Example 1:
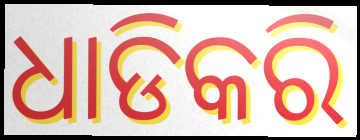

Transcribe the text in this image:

ଧାଡିକରି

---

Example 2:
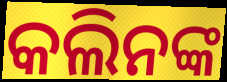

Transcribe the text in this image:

କଲିନଙ୍କ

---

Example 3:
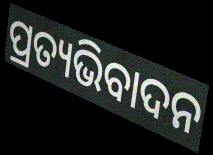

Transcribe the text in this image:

ପ୍ରତ୍ୟଭିବାଦନ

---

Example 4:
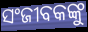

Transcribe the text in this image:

ସଂଜୀବକଙ୍କୁ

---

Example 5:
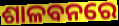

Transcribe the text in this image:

ଶାଳବନରେ